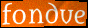
fondue